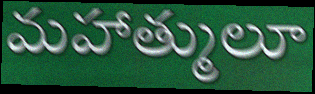
మహాత్ములూ